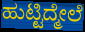
ಹುಟ್ಟಿದ್ಮೇಲೆ